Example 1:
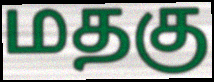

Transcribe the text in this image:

மதகு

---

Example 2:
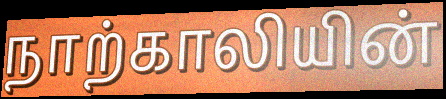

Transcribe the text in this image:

நாற்காலியின்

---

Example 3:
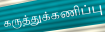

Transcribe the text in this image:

கருத்துக்கணிப்பு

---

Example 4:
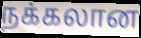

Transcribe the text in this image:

நக்கலான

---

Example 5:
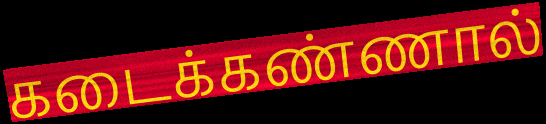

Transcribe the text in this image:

கடைக்கண்ணால்